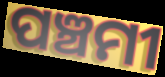
ପଞ୍ଚମୀ